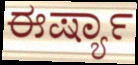
ಈರ್ಷ್ಯಾ